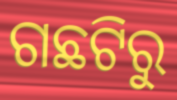
ଗଛଟିରୁ